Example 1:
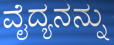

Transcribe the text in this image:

ವೈದ್ಯನನ್ನು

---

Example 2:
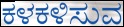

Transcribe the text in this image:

ಕಳಕಳಿಸುವ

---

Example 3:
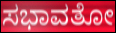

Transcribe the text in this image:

ಸಭಾವತೋ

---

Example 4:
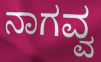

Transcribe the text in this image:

ನಾಗವ್ವ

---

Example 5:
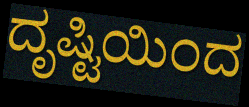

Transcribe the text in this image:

ದೃಷ್ಟಿಯಿಂದ